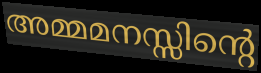
അമ്മമനസ്സിന്റെ